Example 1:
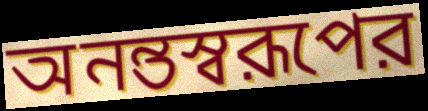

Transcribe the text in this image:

অনন্তস্বরূপের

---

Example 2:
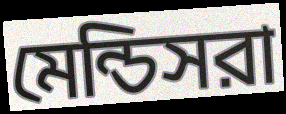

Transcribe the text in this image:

মেন্ডিসরা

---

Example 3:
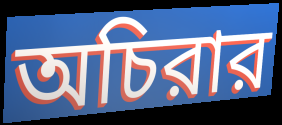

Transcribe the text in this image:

অচিরার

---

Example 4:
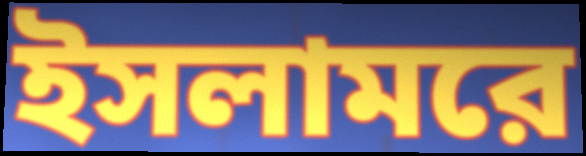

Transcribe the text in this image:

ইসলামরে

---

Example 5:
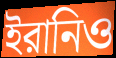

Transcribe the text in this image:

ইরানিও